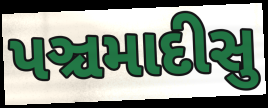
પઞ્ચમાદીસુ